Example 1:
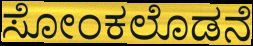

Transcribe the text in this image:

ಸೋಂಕಲೊಡನೆ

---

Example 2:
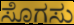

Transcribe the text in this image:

ಸೊಗಸು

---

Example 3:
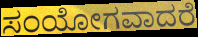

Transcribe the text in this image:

ಸಂಯೋಗವಾದರೆ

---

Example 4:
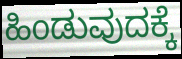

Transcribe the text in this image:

ಹಿಂಡುವುದಕ್ಕೆ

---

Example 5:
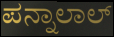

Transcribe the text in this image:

ಪನ್ನಾಲಾಲ್